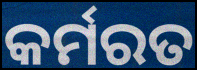
କର୍ମରତ